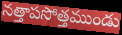
నత్తాపసోత్తముండు